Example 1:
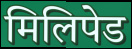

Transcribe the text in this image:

मिलिपेड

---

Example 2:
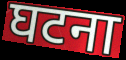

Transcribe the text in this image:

घटना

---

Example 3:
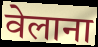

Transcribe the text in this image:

वेलाना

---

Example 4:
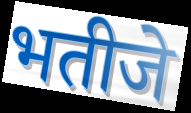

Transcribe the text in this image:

भतीजे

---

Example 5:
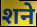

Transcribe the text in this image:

शने